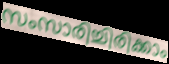
സംസാരിച്ചിരിക്കാം